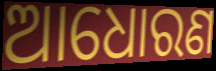
ଆଧୋରଣ